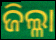
ଜିଲ୍ଳା